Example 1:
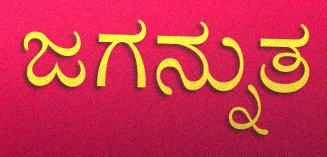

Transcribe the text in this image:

ಜಗನ್ನುತ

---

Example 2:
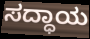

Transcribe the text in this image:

ಸದ್ಧಾಯ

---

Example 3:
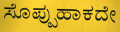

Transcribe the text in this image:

ಸೊಪ್ಪುಹಾಕದೇ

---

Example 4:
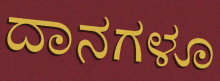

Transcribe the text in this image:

ದಾನಗಳೂ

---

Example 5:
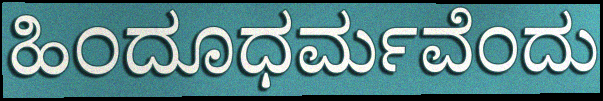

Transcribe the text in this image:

ಹಿಂದೂಧರ್ಮವೆಂದು